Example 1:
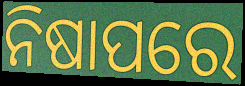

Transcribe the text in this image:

ନିଷାପରେ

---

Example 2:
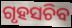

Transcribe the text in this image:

ଗୃହସଚିବ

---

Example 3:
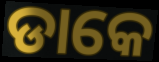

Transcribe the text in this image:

ଡାକେ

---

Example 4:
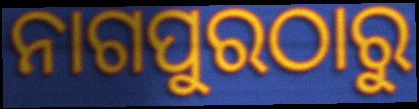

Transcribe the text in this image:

ନାଗପୁରଠାରୁ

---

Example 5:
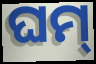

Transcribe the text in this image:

ଘମ୍